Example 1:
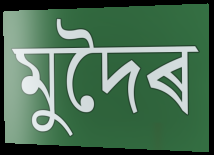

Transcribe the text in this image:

মুদৈৰ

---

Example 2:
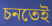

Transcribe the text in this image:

চনতেই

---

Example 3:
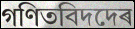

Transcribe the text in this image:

গণিতবিদদেৰ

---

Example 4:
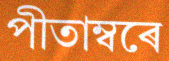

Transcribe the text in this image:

পীতাম্বৰে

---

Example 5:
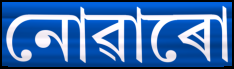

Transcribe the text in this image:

নোৱাৰো